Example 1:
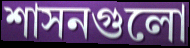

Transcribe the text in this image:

শাসনগুলো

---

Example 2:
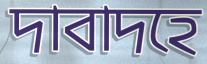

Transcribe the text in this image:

দাবাদহে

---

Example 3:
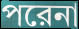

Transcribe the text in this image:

পরেনা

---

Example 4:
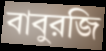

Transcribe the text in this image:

বাবুরজি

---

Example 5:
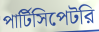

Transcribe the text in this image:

পার্টিসিপেটরি